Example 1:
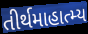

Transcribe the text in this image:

તીર્થમાહાત્મ્ય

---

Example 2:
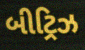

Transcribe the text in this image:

બીટ્રિઝ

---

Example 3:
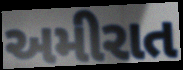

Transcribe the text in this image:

અમીરાત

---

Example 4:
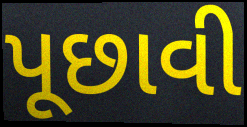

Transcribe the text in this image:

પૂછાવી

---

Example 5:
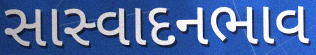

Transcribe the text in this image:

સાસ્વાદનભાવ